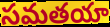
సమతయా